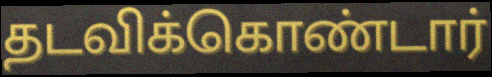
தடவிக்கொண்டார்